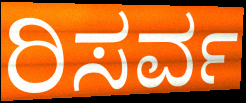
ರಿಸರ್ವ